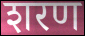
शरण